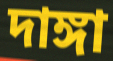
দাঙ্গা